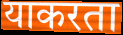
याकरता